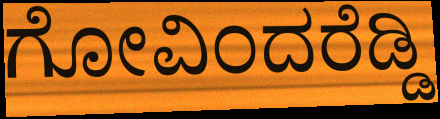
ಗೋವಿಂದರೆಡ್ಡಿ